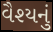
વૈશ્યનું